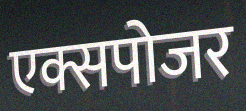
एक्सपोजर